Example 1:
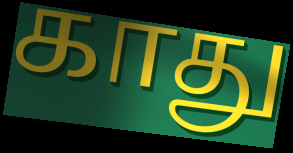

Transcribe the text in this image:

காது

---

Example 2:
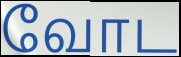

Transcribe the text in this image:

வோட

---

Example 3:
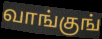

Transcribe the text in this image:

வாங்குங்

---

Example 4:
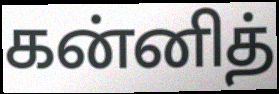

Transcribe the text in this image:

கன்னித்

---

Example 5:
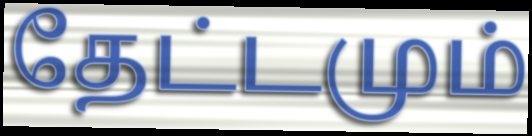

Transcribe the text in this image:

தேட்டமும்